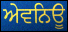
ਅੇਵਨਿਊ